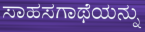
ಸಾಹಸಗಾಥೆಯನ್ನು